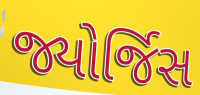
જ્યોર્જિસ